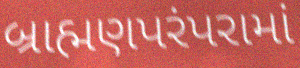
બ્રાહ્મણપરંપરામાં